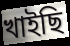
খাইছি